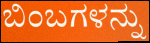
ಬಿಂಬಗಳನ್ನು